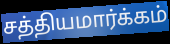
சத்தியமார்க்கம்